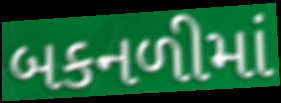
બકનળીમાં